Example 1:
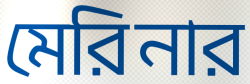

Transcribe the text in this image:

মেরিনার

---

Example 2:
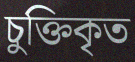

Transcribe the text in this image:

চুক্তিকৃত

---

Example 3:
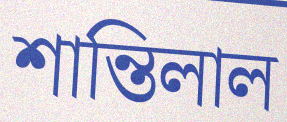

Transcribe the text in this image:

শান্তিলাল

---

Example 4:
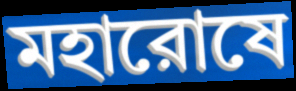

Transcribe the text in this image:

মহারোষে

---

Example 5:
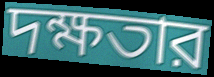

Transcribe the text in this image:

দক্ষতার